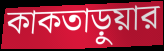
কাকতাড়ুয়ার